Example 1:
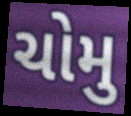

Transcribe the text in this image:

ચોમુ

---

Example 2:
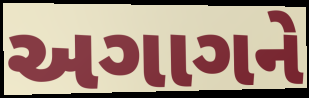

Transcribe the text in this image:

અગાગને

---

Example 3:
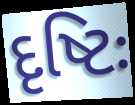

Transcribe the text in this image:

દૃષ્ટિઃ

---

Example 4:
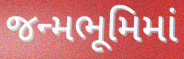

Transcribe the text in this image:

જન્મભૂમિમાં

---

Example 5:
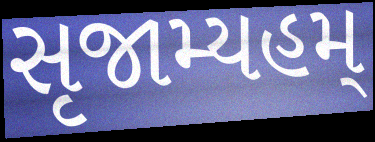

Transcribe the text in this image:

સૃજામ્યહમ્